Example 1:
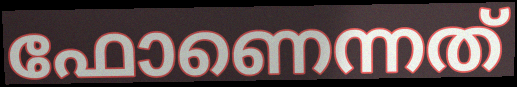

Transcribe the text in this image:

ഫോണെന്നത്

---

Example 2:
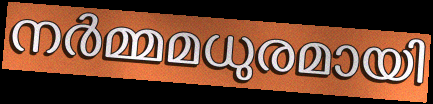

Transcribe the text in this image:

നർമ്മമധുരമായി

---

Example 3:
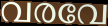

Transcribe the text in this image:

വരവേ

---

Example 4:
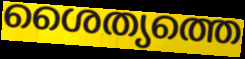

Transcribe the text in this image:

ശൈത്യത്തെ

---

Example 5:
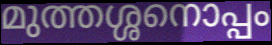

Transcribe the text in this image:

മുത്തശ്ശനൊപ്പം